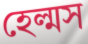
হেল্মস